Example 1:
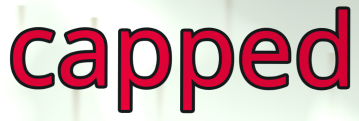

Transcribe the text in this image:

capped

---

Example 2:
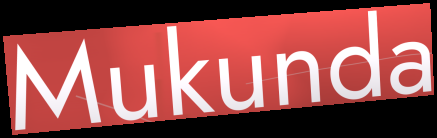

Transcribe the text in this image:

Mukunda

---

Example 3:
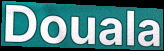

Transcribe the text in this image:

Douala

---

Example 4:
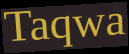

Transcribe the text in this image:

Taqwa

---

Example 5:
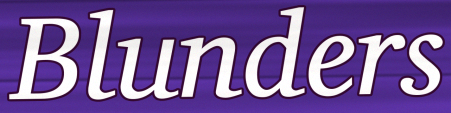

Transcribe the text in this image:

Blunders